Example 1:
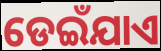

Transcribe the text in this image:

ଡେଇଁଯାଏ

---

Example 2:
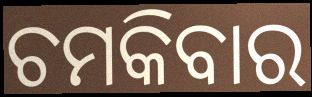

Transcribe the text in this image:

ଚମକିବାର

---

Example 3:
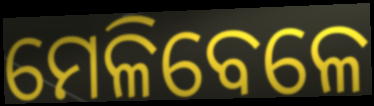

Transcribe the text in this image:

ମେଳିବେଳେ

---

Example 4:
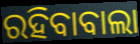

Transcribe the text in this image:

ରହିବାବାଲା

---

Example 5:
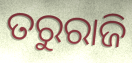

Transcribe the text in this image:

ତରୁରାଜି